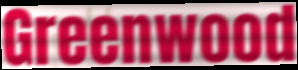
Greenwood